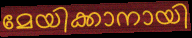
മേയിക്കാനായി